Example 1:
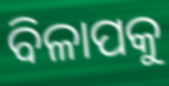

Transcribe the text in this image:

ବିଳାପକୁ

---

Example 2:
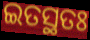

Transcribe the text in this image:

ଇତସ୍ଥତଃ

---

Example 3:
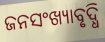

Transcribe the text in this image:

ଜନସଂଖ୍ୟାବୃଦ୍ଧି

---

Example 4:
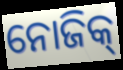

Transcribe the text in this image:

ନୋଜିକ୍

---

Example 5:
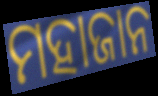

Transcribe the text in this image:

ମହାଜାନ